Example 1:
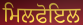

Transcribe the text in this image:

ਮਿਲਫੋਇਲ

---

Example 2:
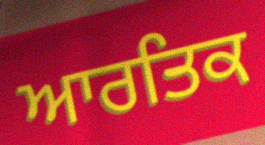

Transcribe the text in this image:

ਆਰਤਿਕ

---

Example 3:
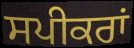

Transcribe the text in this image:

ਸਪੀਕਰਾਂ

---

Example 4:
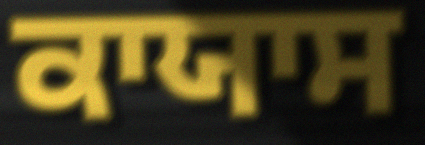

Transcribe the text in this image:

ਕਾਯਾਸ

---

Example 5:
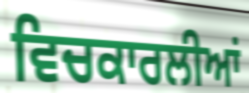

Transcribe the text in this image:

ਵਿਚਕਾਰਲੀਆਂ